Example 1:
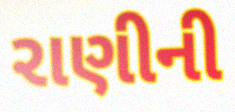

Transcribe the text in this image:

રાણીની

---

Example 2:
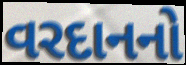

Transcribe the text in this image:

વરદાનનો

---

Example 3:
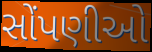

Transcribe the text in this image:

સોંપણીઓ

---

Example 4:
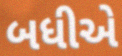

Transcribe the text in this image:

બધીએ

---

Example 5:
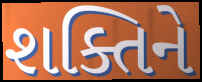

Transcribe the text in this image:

શક્તિને